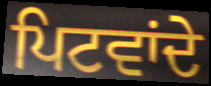
ਪਿਟਵਾਂਦੇ